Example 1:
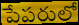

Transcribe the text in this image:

పేపరులో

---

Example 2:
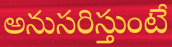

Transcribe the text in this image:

అనుసరిస్తుంటే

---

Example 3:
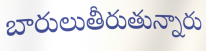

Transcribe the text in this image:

బారులుతీరుతున్నారు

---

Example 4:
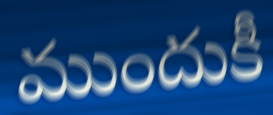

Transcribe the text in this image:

ముందుకీ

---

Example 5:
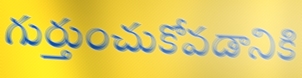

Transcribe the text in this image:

గుర్తుంచుకోవడానికి